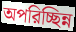
অপরিচ্ছিন্ন